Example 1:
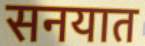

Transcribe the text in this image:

सनयात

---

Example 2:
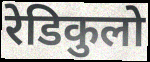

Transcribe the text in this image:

रेडिकुलो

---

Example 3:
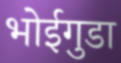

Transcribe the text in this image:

भोईगुडा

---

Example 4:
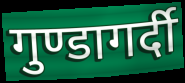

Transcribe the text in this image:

गुण्डागर्दी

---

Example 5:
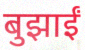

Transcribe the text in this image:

बुझाईं